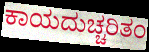
ಕಾಯದುಚ್ಚರಿತಂ